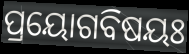
ପ୍ରୟୋଗବିଷୟଃ